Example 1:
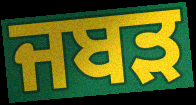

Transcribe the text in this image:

ਜਬੜ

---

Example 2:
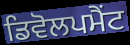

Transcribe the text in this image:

ਡਿਵੋਲਪਮੈਂਟ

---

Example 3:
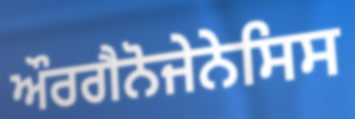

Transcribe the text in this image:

ਔਰਗੈਨੋਜੇਨੇਸਿਸ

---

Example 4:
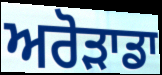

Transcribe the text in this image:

ਅਰੋੜਾਡਾ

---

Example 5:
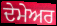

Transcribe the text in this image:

ਦੇਮੇਅਰ